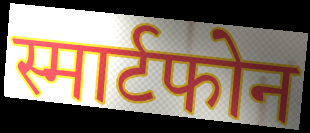
स्मार्टफोन